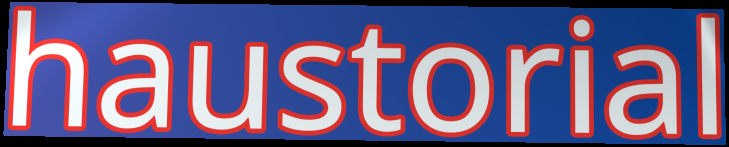
haustorial